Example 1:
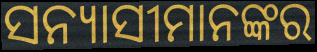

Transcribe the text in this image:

ସନ୍ୟାସୀମାନଙ୍କର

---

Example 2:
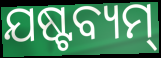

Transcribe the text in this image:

ଯଷ୍ଟବ୍ୟମ୍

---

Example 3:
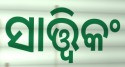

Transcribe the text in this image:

ସାତ୍ତ୍ୱିକଂ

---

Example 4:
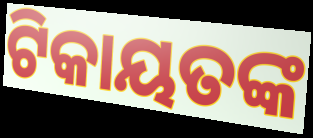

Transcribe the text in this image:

ଟିକାୟତଙ୍କ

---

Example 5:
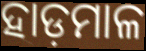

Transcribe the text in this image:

ହାଡ଼ମାଳ